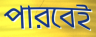
পারবেই